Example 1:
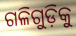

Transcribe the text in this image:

ଗଳିଗୁଡ଼ିକୁ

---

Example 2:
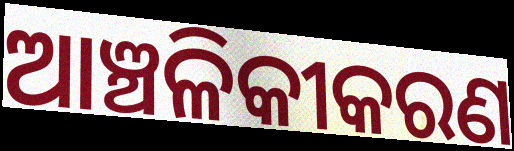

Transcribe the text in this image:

ଆଞ୍ଚଳିକୀକରଣ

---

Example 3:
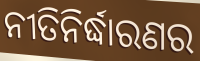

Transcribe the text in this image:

ନୀତିନିର୍ଦ୍ଧାରଣର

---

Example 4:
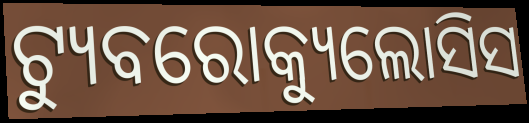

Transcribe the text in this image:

ଟ୍ୟୁବରୋକ୍ୟୁଲୋସିସ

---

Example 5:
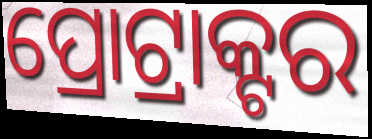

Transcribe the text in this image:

ପ୍ରୋଟ୍ରାକ୍ଟର